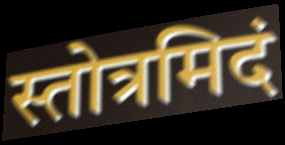
स्तोत्रमिदं